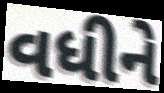
વધીને